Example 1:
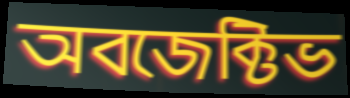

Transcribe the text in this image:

অবজেক্টিভ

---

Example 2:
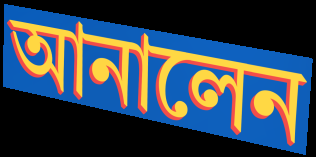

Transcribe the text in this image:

আনালেন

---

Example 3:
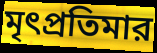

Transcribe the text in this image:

মৃৎপ্রতিমার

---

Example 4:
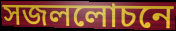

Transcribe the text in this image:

সজললোচনে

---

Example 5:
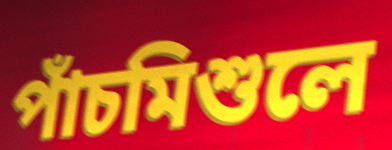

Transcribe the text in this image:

পাঁচমিশুলে